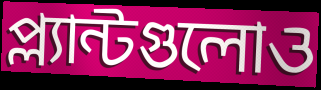
প্ল্যান্টগুলোও